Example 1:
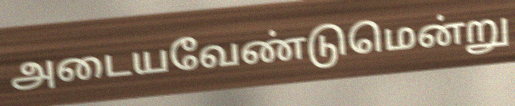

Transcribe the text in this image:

அடையவேண்டுமென்று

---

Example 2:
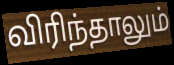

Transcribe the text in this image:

விரிந்தாலும்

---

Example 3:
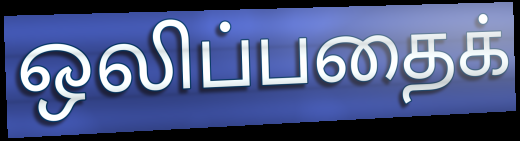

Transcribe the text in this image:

ஒலிப்பதைக்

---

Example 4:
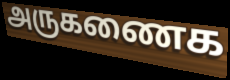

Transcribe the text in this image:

அருகணைக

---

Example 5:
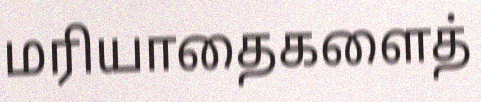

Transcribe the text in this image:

மரியாதைகளைத்